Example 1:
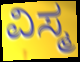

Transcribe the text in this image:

ವಿಸ್ಮ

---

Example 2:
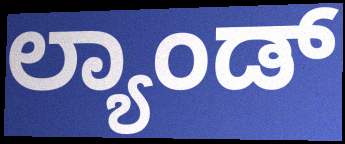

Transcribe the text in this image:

ಲ್ಯಾಂಡ್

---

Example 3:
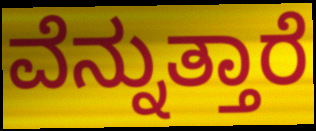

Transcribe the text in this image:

ವೆನ್ನುತ್ತಾರೆ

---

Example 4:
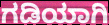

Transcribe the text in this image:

ಗಡಿಯಾಗಿ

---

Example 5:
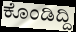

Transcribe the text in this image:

ಕೊಂಡಿದ್ದಿ